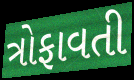
ત્રોફાવતી